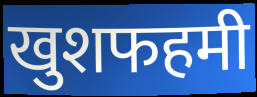
खुशफहमी